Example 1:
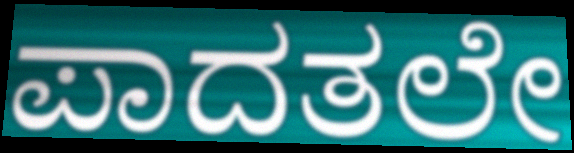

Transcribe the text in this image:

ಪಾದತಲೇ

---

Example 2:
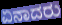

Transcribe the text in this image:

ಏನಾದರು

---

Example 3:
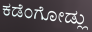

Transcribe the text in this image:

ಕಡೆಂಗೋಡ್ಲು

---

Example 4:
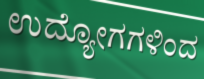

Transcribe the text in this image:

ಉದ್ಯೋಗಗಳಿಂದ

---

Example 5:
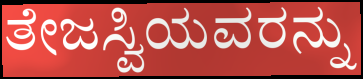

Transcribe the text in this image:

ತೇಜಸ್ವಿಯವರನ್ನು